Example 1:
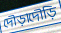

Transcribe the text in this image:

দৌড়াদৌড়ি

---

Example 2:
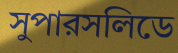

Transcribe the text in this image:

সুপারসলিডে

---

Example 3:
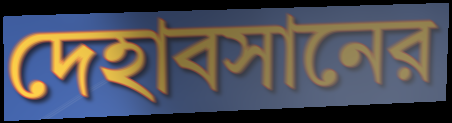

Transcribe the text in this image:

দেহাবসানের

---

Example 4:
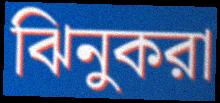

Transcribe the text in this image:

ঝিনুকরা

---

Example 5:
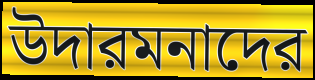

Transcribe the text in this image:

উদারমনাদের